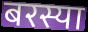
बरस्या